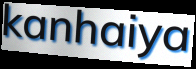
kanhaiya